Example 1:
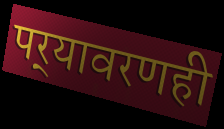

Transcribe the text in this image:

पर्यावरणही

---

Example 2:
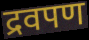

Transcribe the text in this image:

द्रवपण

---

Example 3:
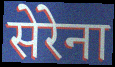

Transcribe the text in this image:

सेरेना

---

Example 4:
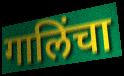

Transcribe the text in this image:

गालिंचा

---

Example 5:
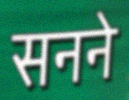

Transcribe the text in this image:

सनने